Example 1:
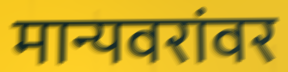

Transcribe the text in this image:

मान्यवरांवर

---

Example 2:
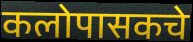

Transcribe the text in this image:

कलोपासकचे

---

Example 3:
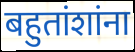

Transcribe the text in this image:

बहुतांशांना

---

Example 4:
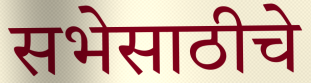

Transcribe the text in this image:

सभेसाठीचे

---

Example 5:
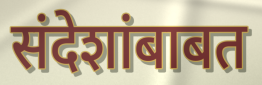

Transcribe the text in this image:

संदेशांबाबत